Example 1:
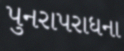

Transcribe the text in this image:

પુનરાપરાધના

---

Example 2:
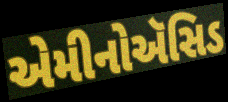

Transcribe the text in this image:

એમીનોઍસિડ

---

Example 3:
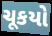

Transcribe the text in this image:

ચૂકયો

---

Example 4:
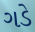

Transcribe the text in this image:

ગડે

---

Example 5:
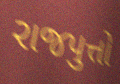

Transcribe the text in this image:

રાજપુત્તો